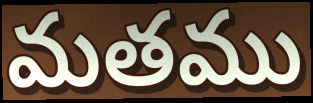
మతము